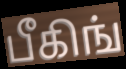
பீகிங்